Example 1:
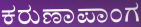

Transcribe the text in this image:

ಕರುಣಾಪಾಂಗ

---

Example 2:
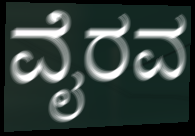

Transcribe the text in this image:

ವೈರವ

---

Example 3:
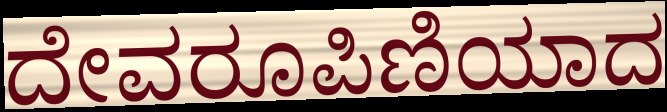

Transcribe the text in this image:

ದೇವರೂಪಿಣಿಯಾದ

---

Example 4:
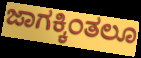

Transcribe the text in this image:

ಜಾಗಕ್ಕಿಂತಲೂ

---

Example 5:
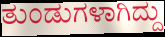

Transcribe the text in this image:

ತುಂಡುಗಳಾಗಿದ್ದು